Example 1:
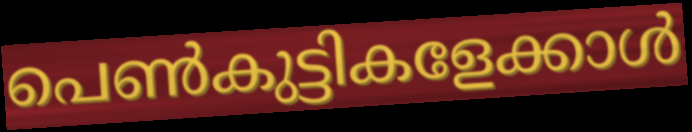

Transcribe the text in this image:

പെൺകുട്ടികളേക്കാൾ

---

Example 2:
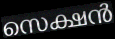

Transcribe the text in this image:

സെക്ഷൻ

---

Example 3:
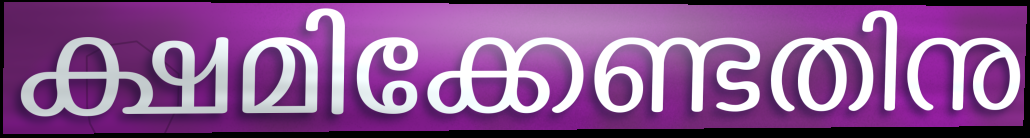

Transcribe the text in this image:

ക്ഷമിക്കേണ്ടതിനു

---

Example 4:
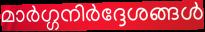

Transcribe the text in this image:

മാർഗ്ഗനിർദ്ദേശങ്ങൾ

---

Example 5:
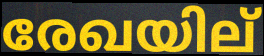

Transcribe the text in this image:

രേഖയില്